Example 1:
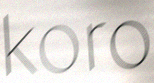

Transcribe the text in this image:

koro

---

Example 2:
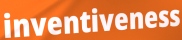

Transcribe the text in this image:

inventiveness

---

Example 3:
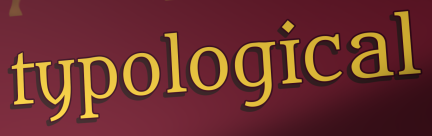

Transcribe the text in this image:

typological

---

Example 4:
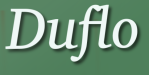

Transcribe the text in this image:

Duflo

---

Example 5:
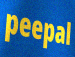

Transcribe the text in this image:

peepal